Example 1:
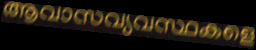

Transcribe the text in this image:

ആവാസവ്യവസ്ഥകളെ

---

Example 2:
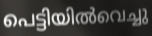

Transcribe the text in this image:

പെട്ടിയിൽവെച്ചു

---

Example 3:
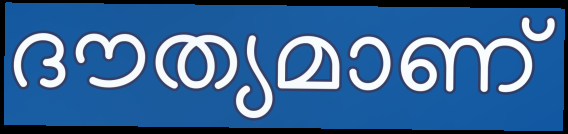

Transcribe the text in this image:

ദൗത്യമാണ്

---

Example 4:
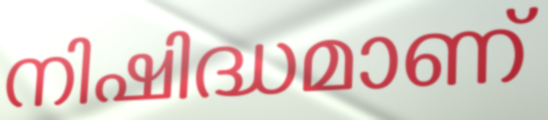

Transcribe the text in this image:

നിഷിദ്ധമാണ്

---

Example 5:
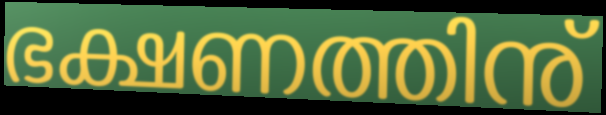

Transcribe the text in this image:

ഭക്ഷണത്തിനു്